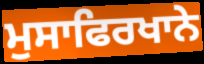
ਮੁਸਾਫਿਰਖਾਨੇ